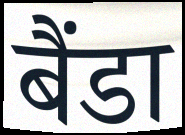
बैंडा